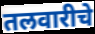
तलवारीचे